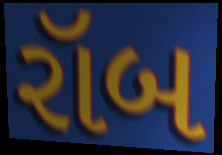
રૉબ